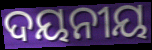
ଦୟନୀୟ